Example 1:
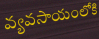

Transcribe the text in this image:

వ్యవసాయంలోకి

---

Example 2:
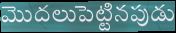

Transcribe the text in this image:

మొదలుపెట్టినపుడు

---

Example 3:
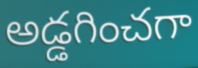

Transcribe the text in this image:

అడ్డగించగా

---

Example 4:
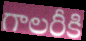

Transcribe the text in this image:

గాలరీకి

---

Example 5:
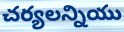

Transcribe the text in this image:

చర్యలన్నియు